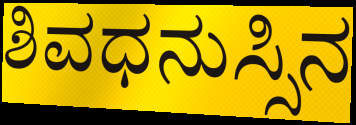
ಶಿವಧನುಸ್ಸಿನ